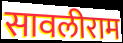
सावलीराम